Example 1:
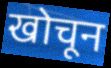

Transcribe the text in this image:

खोचून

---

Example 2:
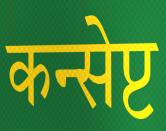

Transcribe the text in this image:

कन्सेप्ट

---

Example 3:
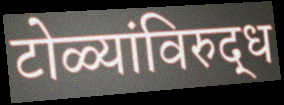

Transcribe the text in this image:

टोळ्यांविरुद्ध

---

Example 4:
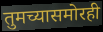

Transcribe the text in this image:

तुमच्यासमोरही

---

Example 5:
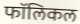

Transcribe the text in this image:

फॉलिकल